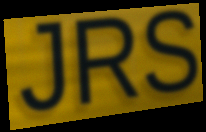
JRS